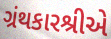
ગ્રંથકારશ્રીએ